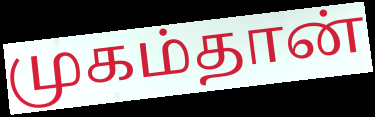
முகம்தான்